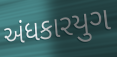
અંધકારયુગ